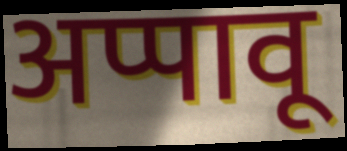
अप्पावू